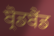
ਬ੍ਰੋਡਬੈਂਡ